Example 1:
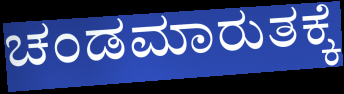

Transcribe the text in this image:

ಚಂಡಮಾರುತಕ್ಕೆ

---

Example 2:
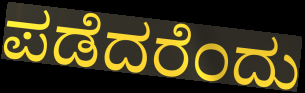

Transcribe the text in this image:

ಪಡೆದರೆಂದು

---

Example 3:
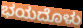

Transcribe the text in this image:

ಭಯದೊಳು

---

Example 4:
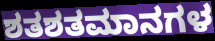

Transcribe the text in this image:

ಶತಶತಮಾನಗಳ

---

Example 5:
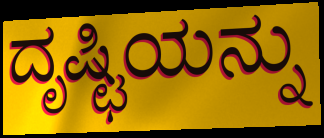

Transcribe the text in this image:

ದೃಷ್ಟಿಯನ್ನು